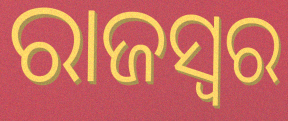
ରାଜସ୍ୱର